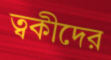
ত্বকীদের